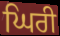
ਘਿਰੀ